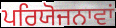
ਪਰਿਯੋਜਨਾਵਾਂ